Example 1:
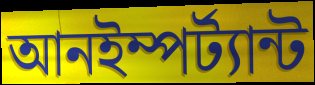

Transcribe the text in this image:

আনইম্পর্ট্যান্ট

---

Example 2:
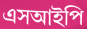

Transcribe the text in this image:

এসআইপি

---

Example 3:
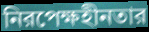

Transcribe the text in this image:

নিরপেক্ষহীনতার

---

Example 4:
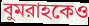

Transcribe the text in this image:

বুমরাহকেও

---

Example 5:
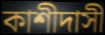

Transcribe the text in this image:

কাশীদাসী